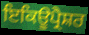
ਇਕਿਊਪ੍ਰੈਸ਼ਰ